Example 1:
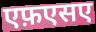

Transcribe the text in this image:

एफ़एसए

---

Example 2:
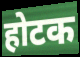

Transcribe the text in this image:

होटक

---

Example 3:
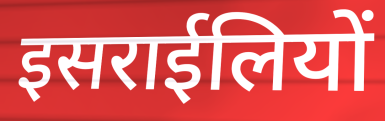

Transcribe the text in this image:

इसराईलियों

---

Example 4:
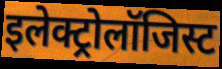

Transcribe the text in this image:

इलेक्ट्रोलॉजिस्ट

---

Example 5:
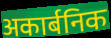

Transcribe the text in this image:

अकार्बनिक